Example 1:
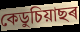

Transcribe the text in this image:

কেডুচিয়াছৰ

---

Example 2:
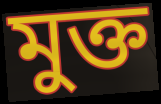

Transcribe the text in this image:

মুক্ত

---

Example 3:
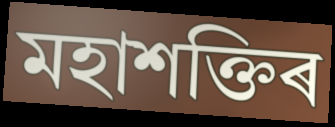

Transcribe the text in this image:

মহাশক্তিৰ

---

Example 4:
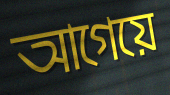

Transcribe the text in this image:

আগেয়ে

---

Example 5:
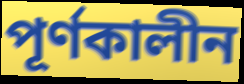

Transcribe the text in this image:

পূৰ্ণকালীন